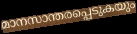
മാനസാന്തരപ്പെടുകയും